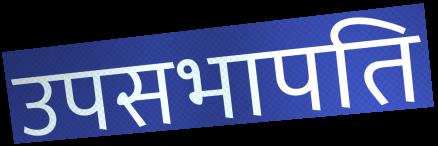
उपसभापति